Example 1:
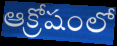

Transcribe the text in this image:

ఆక్రోషంలో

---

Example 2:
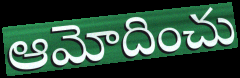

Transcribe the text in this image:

ఆమోదించు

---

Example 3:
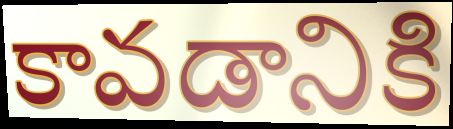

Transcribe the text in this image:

కావడానికి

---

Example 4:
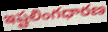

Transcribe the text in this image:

ఇష్టలింగధారణ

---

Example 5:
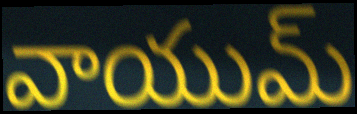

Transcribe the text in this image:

వాయుమ్